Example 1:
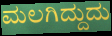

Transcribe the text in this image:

ಮಲಗಿದ್ದುದು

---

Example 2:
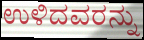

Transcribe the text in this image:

ಉಳಿದವರನ್ನು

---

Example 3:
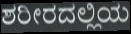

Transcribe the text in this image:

ಶರೀರದಲ್ಲಿಯ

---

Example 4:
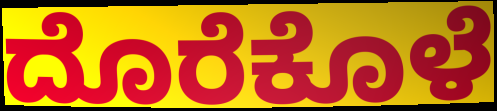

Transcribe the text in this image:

ದೊರೆಕೊಳೆ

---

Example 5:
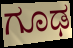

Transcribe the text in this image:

ಗೂಢ